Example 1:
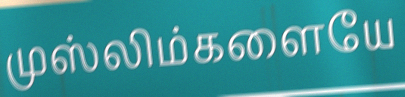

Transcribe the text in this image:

முஸ்லிம்களையே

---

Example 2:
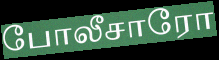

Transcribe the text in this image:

போலீசாரோ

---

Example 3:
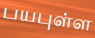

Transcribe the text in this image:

பயபுள்ள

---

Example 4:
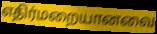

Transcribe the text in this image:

எதிர்மறையானவை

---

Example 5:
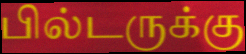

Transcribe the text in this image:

பில்டருக்கு